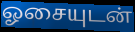
ஓசையுடன்